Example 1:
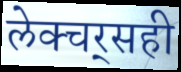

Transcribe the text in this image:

लेक्चर्सही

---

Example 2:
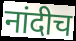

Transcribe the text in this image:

नांदीच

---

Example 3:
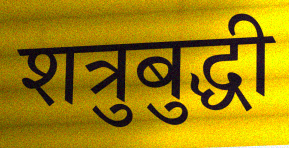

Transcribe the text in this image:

शत्रुबुद्धी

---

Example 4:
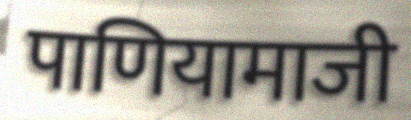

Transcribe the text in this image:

पाणियामाजी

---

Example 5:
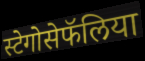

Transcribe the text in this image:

स्टेगोसेफॅलिया